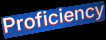
Proficiency